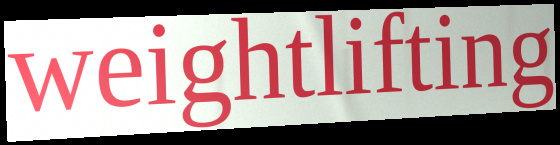
weightlifting